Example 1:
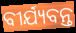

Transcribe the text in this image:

ବୀର୍ଯ୍ୟବନ୍ତ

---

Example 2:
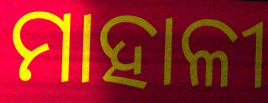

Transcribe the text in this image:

ମାହାଳୀ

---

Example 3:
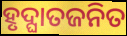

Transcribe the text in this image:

ହୃଦ୍ଘାତଜନିତ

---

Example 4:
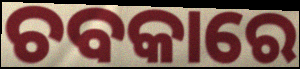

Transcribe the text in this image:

ଚବକାରେ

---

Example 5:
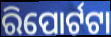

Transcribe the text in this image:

ରିପୋର୍ଟଟା